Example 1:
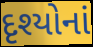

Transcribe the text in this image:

દૃશ્યોનાં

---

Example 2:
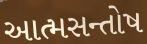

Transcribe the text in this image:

આત્મસન્તોષ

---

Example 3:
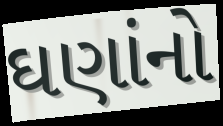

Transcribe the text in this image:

ઘણાંનો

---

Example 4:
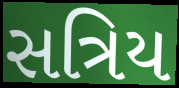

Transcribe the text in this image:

સત્રિય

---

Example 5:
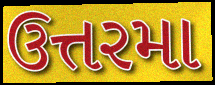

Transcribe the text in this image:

ઉત્તરમા